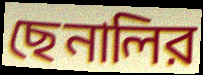
ছেনালির